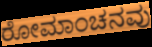
ರೋಮಾಂಚನವು